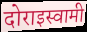
दोराइस्वामी